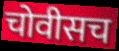
चोवीसच